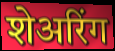
शेअरिंग